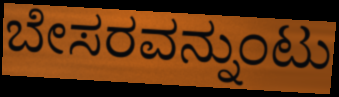
ಬೇಸರವನ್ನುಂಟು